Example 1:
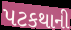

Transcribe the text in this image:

પટકથાની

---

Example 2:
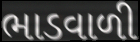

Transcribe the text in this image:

ભાડવાળી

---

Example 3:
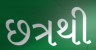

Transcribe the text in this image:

છત્રથી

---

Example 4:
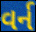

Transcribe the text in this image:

વર્ન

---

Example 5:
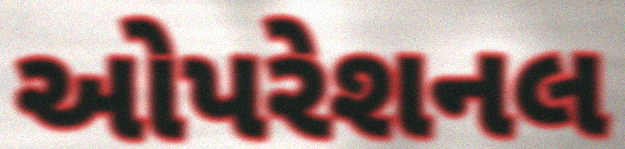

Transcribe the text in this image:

ઓપરેશનલ